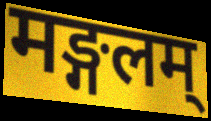
मङ्गलम्